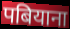
पबियाना